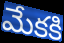
మేకకి